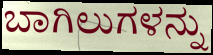
ಬಾಗಿಲುಗಳನ್ನು